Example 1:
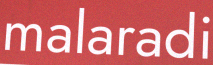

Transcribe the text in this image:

malaradi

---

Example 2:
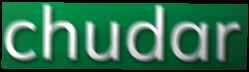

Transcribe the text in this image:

chudar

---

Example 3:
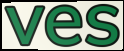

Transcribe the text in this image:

ves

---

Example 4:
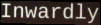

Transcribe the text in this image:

Inwardly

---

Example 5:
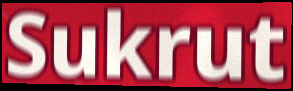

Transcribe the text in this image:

Sukrut